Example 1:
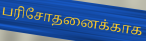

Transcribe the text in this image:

பரிசோதனைக்காக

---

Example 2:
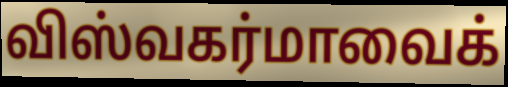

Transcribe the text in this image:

விஸ்வகர்மாவைக்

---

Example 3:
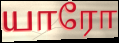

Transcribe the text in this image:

யாரோ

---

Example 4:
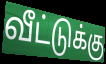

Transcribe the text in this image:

வீட்டுக்கு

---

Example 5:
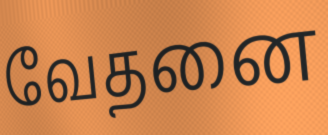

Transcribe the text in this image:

வேதனை